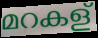
മറകള്